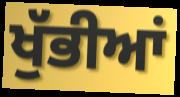
ਖੁੱਭੀਆਂ